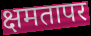
क्षमतापर